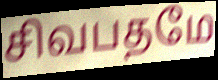
சிவபதமே